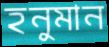
হনুমান